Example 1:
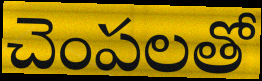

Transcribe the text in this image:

చెంపలతో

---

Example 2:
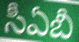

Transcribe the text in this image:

సీఏబీ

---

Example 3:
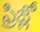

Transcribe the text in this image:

ఫ్రిజ్లో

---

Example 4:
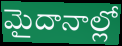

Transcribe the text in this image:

మైదానాల్లో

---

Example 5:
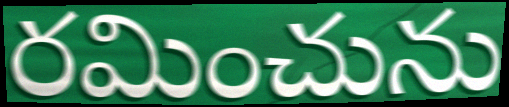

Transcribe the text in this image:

రమించును